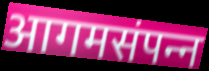
आगमसंपन्न